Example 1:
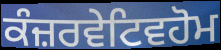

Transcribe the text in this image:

ਕੰਜ਼ਰਵੇਟਿਵਹੋਮ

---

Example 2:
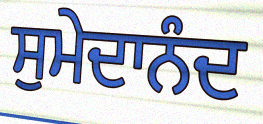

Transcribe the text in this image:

ਸੁਮੇਦਾਨੰਦ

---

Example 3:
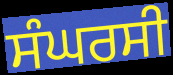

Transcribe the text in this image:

ਸੰਘਰਸੀ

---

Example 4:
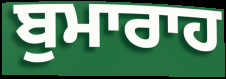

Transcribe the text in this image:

ਬੁਮਾਰਾਹ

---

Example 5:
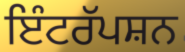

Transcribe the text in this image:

ਇੰਟਰੱਪਸ਼ਨ